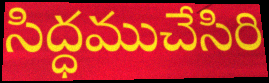
సిద్ధముచేసిరి